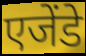
एजेंडे